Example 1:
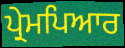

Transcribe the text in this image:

ਪ੍ਰੇਮਪਿਆਰ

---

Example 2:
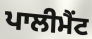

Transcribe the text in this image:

ਪਾਲੀਮੈਂਟ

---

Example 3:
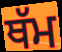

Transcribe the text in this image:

ਥੱਮ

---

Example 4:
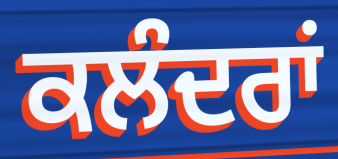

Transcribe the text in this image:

ਕਲੰਦਰਾਂ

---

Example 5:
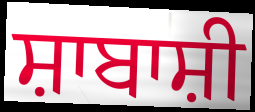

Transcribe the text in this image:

ਸ਼ਾਬਾਸ਼ੀ